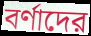
বর্ণাদের